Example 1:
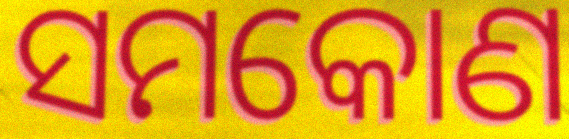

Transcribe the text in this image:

ସମକୋଣ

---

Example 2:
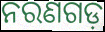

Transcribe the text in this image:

ନରଣଗଡ଼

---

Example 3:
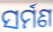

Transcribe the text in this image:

ସର୍ମଣ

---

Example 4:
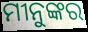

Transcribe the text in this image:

ମୀନୁଙ୍କର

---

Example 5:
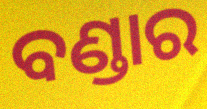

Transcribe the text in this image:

ବଣ୍ଡାର